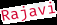
Rajavi